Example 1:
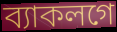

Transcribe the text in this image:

ব্যাকলগে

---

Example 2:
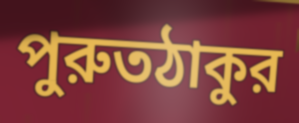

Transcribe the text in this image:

পুরুতঠাকুর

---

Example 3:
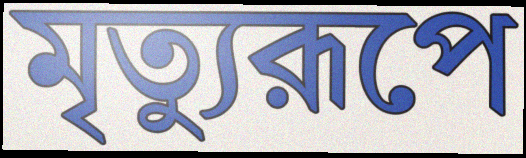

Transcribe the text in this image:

মৃত্যুরূপে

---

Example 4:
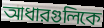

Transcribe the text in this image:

আধারগুলিকে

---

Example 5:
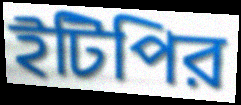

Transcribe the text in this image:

ইটিপির